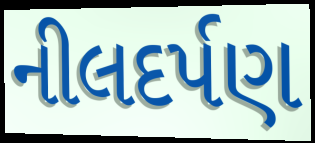
નીલદર્પણ